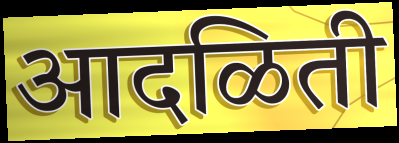
आदळिती